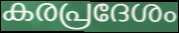
കരപ്രദേശം